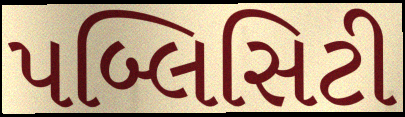
પબ્લિસિટી